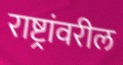
राष्ट्रांवरील